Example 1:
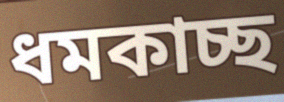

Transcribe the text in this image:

ধমকাচ্ছ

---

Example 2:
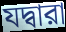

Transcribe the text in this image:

যদ্বারা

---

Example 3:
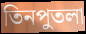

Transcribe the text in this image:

তিনপুতলা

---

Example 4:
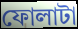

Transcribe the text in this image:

ফোলাটা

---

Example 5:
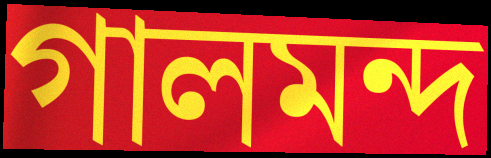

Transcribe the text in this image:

গালমন্দ